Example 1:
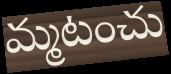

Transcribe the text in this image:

మ్మటంచు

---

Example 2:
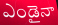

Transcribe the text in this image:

ఎండైనా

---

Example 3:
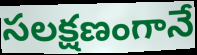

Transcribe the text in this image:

సలక్షణంగానే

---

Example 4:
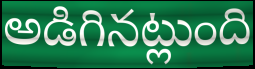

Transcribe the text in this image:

అడిగినట్లుంది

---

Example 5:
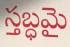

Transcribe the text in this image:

స్తబ్ధమై